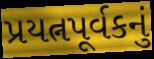
પ્રયત્નપૂર્વકનું